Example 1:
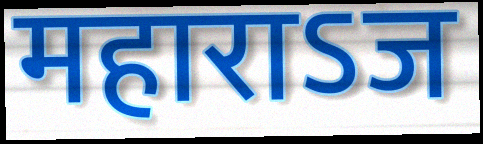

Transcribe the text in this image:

महाराऽज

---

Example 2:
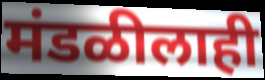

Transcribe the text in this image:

मंडळीलाही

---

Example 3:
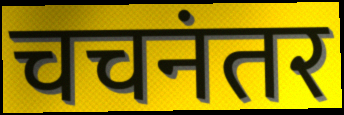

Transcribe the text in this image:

चचनंतर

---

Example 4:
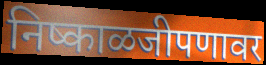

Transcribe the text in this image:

निष्काळजीपणावर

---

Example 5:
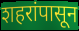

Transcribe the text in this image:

शहरांपासून